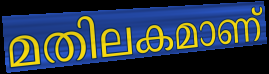
മതിലകമാണ്